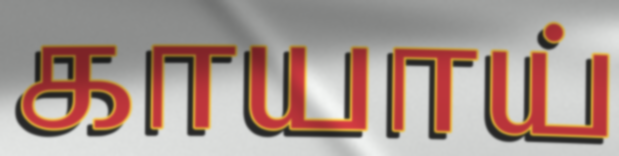
காயாய்